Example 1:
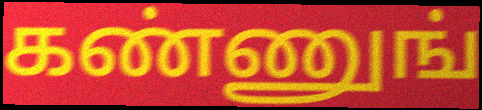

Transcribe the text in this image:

கண்ணுங்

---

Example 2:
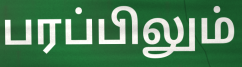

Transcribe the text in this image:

பரப்பிலும்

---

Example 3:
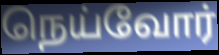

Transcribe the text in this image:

நெய்வோர்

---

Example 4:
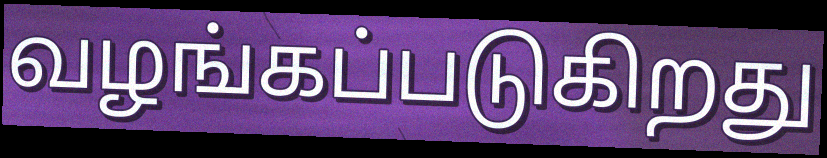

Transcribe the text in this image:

வழங்கப்படுகிறது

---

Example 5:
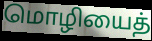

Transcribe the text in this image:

மொழியைத்